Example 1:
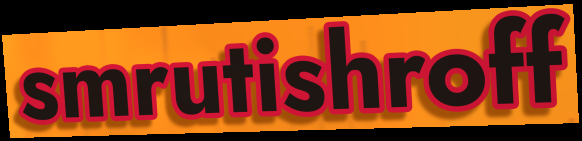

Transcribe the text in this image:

smrutishroff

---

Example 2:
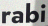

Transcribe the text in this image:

rabi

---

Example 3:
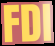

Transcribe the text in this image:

FDI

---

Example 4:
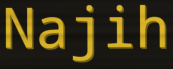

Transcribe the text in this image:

Najih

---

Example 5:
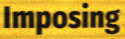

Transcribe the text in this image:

Imposing